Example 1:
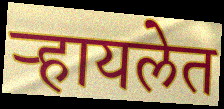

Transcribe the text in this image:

ऱ्हायलेत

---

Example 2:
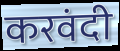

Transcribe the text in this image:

करवंदी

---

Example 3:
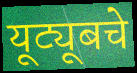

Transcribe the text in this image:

यूट्यूबचे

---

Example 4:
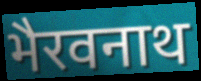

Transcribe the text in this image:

भैरवनाथ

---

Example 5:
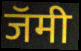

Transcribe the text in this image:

जॅमी